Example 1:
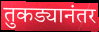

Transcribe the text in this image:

तुकड्यानंतर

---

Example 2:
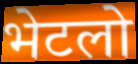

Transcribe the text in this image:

भेटलो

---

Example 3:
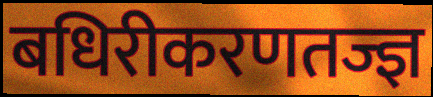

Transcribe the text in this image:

बधिरीकरणतज्ज्ञ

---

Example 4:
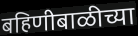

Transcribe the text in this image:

बहिणीबाळीच्या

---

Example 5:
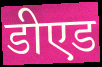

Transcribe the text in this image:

डीएड